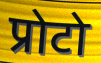
प्रोटो